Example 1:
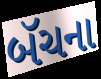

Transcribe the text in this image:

બૅચના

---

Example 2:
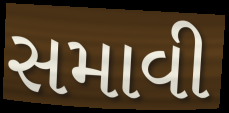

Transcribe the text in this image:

સમાવી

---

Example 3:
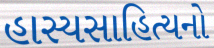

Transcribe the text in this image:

હાસ્યસાહિત્યનો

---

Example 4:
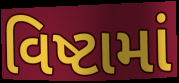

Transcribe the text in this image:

વિષ્ટામાં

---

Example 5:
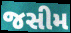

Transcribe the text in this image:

જસીમ